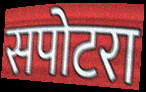
सपोटरा